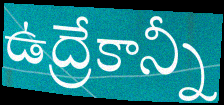
ఉద్రేకాన్నీ